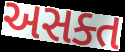
અસક્ત